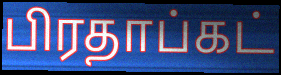
பிரதாப்கட்